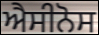
ਐਸੀਨੋਸ